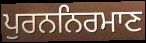
ਪੁਰਨਨਿਰਮਾਣ